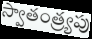
స్వాతంత్ర్యపు